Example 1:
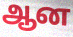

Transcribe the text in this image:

ஆன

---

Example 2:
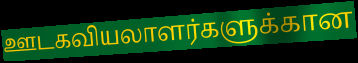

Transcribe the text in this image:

ஊடகவியலாளர்களுக்கான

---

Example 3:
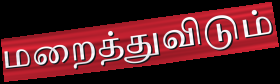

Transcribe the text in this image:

மறைத்துவிடும்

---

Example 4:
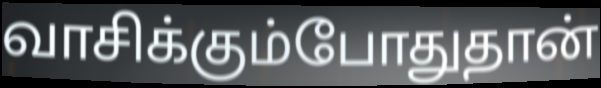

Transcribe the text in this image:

வாசிக்கும்போதுதான்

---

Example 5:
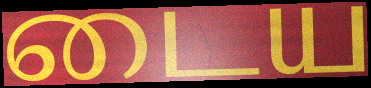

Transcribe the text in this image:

டைய